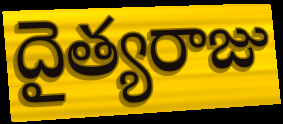
దైత్యరాజు